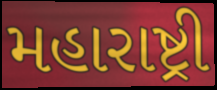
મહારાષ્ટ્રી